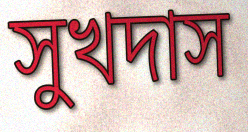
সুখদাস